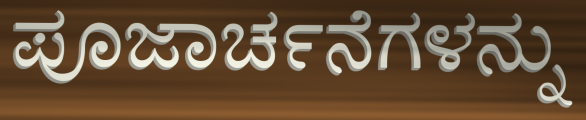
ಪೂಜಾರ್ಚನೆಗಳನ್ನು